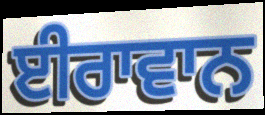
ਈਰਾਵਾਨ